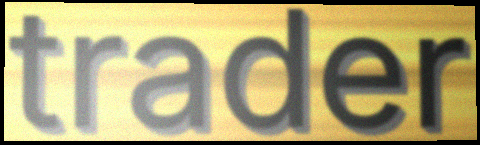
trader